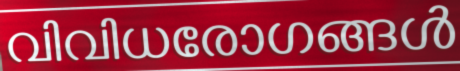
വിവിധരോഗങ്ങൾ